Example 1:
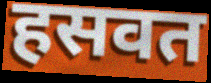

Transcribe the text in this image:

हसवत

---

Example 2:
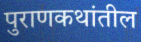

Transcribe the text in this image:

पुराणकथांतील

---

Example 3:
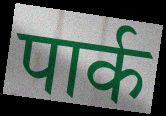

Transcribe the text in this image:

पार्क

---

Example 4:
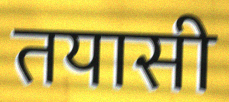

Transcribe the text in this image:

तयासी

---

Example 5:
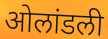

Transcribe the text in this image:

ओलांडली